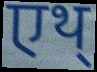
एथ्